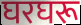
घरघरू